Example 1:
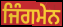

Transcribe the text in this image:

ਜਿੰਗਮੇਨ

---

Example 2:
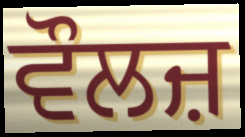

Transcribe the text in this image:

ਵੌਲਜ਼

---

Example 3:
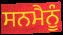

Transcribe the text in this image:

ਸਨਮੈਨੂੰ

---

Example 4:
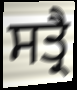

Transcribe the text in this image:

ਸਤ੍ਰੈ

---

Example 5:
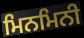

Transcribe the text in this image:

ਮਿਨਮਿਨੀ